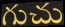
గుచు